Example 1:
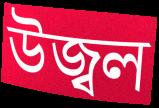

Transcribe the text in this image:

উজ্বল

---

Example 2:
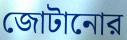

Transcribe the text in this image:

জোটানোর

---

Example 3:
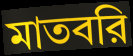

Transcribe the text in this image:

মাতবরি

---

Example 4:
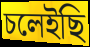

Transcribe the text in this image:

চলেইছি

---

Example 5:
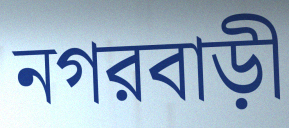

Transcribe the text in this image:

নগরবাড়ী